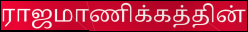
ராஜமாணிக்கத்தின்